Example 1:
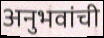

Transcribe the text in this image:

अनुभवांची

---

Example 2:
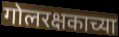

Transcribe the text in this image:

गोलरक्षकाच्या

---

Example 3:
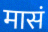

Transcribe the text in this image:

मासं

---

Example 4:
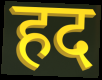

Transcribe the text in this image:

हद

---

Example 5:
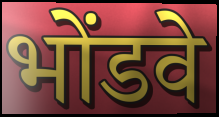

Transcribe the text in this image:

भोंडवे